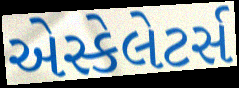
એસ્કેલેટર્સ